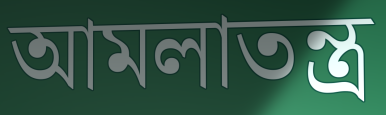
আমলাতন্ত্র